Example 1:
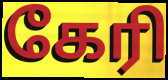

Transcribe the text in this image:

கேரி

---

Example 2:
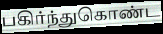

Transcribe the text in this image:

பகிர்ந்துகொண்ட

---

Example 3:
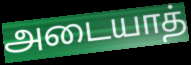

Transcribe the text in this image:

அடையாத்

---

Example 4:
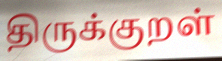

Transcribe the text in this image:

திருக்குறள்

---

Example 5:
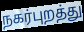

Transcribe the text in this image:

நகர்புறத்து